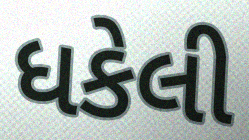
ધકેલી